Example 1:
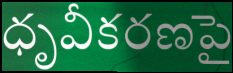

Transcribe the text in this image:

ధృవీకరణపై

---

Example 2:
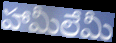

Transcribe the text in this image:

హామీలేమీ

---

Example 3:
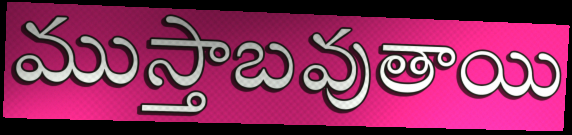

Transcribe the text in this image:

ముస్తాబవుతాయి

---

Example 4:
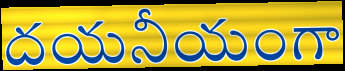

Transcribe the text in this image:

దయనీయంగా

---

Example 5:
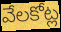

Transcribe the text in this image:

వేలకోట్ల